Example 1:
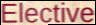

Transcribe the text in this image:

Elective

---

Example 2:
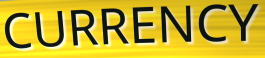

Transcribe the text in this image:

CURRENCY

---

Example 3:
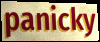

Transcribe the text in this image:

panicky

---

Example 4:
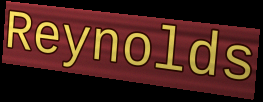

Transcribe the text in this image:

Reynolds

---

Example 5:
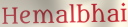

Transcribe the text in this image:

Hemalbhai